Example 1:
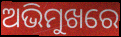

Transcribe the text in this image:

ଅଭିମୁଖରେ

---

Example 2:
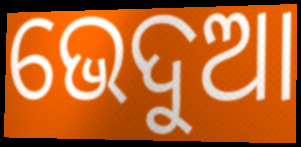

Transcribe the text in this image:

ଭେଦୁଆ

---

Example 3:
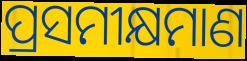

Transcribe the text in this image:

ପ୍ରସମୀକ୍ଷମାଣ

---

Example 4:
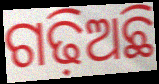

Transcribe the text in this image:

ଗଢ଼ିଅଛି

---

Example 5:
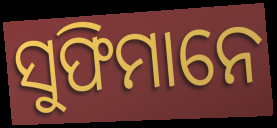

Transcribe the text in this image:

ସୁଫିମାନେ